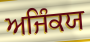
ਅਜਿੰਕਯ